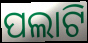
ପଲାଟି